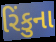
રિંકુના